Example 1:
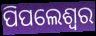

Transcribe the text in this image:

ପିପଲେଶ୍ୱର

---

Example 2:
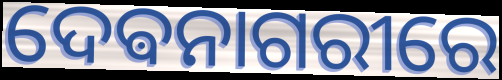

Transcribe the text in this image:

ଦେଵନାଗରୀରେ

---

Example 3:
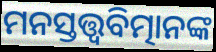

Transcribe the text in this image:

ମନସ୍ତତ୍ତ୍ବବିତ୍ମାନଙ୍କ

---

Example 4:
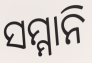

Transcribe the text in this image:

ସମ୍ମାନି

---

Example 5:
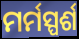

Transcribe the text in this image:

ମର୍ମସ୍ପର୍ଶ